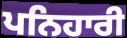
ਪਨਿਹਾਰੀ